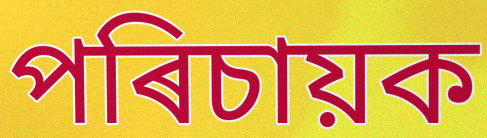
পৰিচায়ক